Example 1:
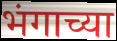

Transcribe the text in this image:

भंगाच्या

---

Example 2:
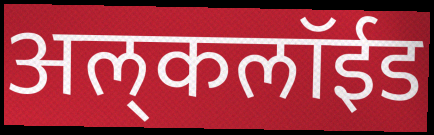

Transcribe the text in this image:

अल्कलॉईड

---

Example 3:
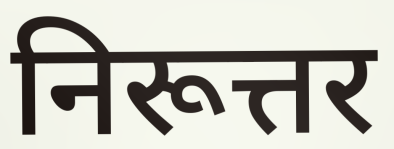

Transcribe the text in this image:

निरूत्तर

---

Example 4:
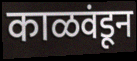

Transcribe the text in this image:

काळवंडून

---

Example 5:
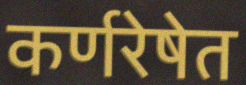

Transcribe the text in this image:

कर्णरेषेत